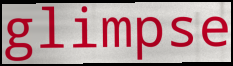
glimpse